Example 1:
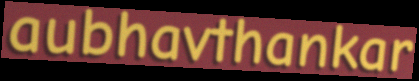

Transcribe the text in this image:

aubhavthankar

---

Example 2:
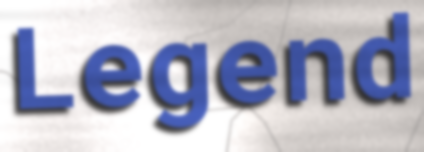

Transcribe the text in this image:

Legend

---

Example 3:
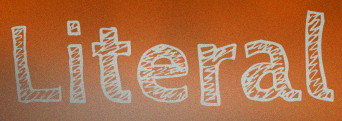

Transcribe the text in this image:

Literal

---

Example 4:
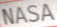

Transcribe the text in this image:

NASA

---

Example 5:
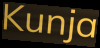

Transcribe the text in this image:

Kunja